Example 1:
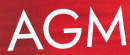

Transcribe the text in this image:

AGM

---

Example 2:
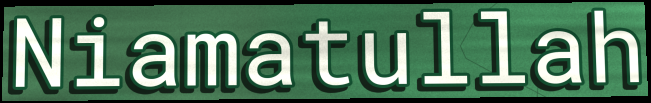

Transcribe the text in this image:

Niamatullah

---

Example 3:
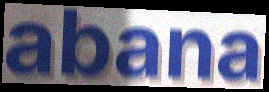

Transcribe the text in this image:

abana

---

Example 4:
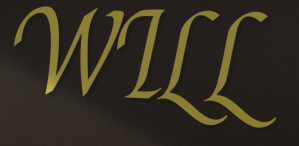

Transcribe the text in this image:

WILL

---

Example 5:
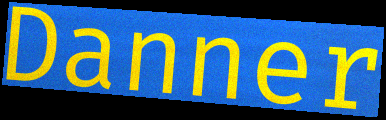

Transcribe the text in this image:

Danner